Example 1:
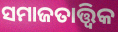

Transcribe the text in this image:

ସମାଜତାତ୍ତ୍ୱିକ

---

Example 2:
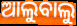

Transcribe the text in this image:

ଆଲୁବାଲୁ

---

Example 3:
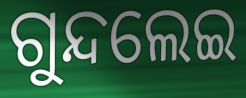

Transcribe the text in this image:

ଗୁନ୍ଦଲେଇ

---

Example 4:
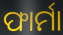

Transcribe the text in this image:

ଫାର୍ମା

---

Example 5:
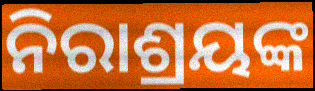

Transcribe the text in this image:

ନିରାଶ୍ରୟଙ୍କ